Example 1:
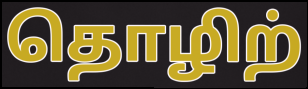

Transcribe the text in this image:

தொழிற்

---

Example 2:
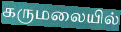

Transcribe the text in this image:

கருமலையில்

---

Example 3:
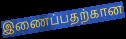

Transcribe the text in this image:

இணைப்பதற்கான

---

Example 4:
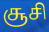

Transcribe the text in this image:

சூசி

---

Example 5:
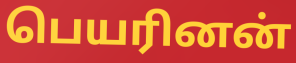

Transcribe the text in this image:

பெயரினன்